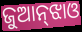
ଜୁଆନ୍‌ଝାଓ